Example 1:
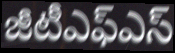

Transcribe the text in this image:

జీటీఎఫ్ఎస్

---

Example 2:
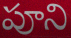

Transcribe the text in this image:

పూని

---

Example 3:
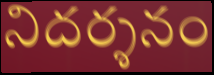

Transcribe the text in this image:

నిదర్శనం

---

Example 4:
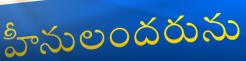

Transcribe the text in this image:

హీనులందరును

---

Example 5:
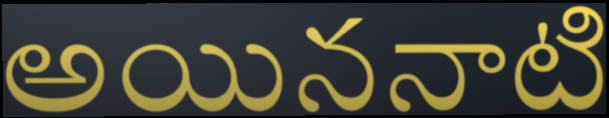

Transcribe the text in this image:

అయిననాటి